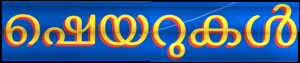
ഷെയറുകൾ